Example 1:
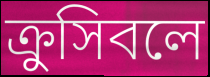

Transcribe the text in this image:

ক্রুসিবলে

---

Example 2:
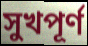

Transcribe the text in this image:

সুখপূর্ণ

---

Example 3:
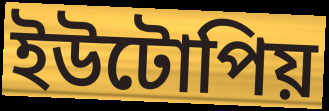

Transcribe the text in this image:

ইউটোপিয়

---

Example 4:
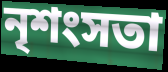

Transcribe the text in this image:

নৃশংসতা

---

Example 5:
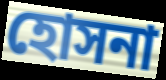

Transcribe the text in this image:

হোসনা